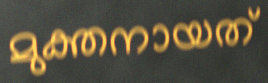
മുക്തനായത്